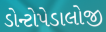
ડોન્ટોપેડાલોજી